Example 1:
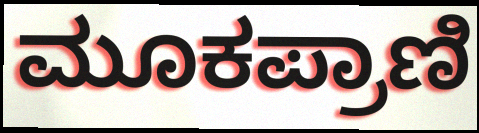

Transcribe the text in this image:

ಮೂಕಪ್ರಾಣಿ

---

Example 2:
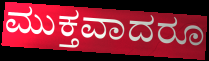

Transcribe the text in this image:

ಮುಕ್ತವಾದರೂ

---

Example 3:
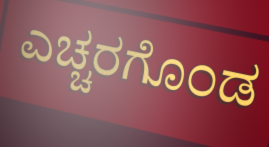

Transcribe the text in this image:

ಎಚ್ಚರಗೊಂಡ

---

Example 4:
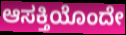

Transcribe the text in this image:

ಆಸಕ್ತಿಯೊಂದೇ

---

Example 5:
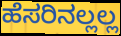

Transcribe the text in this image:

ಹೆಸರಿನಲ್ಲಲ್ಲ